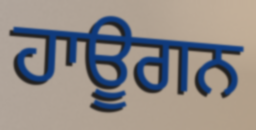
ਹਾਊਗਨ